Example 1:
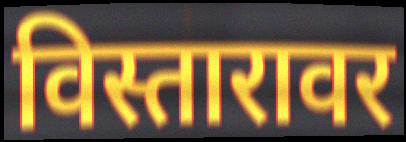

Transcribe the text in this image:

विस्तारावर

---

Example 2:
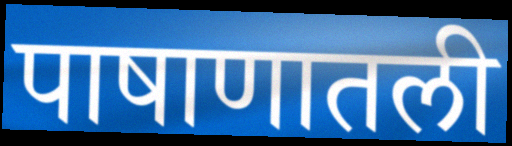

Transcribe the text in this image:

पाषाणातली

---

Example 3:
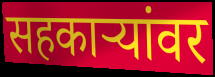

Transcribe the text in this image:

सहकार्‍यांवर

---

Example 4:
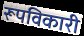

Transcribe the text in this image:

रूपविकारी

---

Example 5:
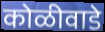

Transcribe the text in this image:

कोळीवाडे